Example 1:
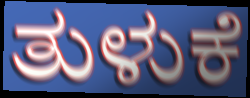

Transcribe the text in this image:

ತುಳುಕೆ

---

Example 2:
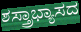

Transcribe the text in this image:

ಶಸ್ತ್ರಾಭ್ಯಾಸದ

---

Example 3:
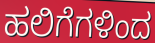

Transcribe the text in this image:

ಹಲಿಗೆಗಳಿಂದ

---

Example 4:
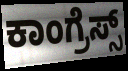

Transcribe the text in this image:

ಕಾಂಗ್ರೆಸ್ಸ್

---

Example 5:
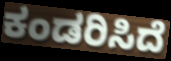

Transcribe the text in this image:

ಕಂಡರಿಸಿದೆ